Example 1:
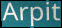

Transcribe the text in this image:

Arpit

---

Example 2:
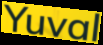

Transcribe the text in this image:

Yuval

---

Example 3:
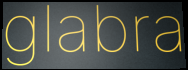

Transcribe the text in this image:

glabra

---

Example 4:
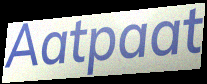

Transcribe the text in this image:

Aatpaat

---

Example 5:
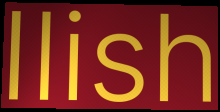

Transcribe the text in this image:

Ilish